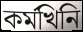
কৰ্মখিনি